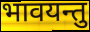
भावयन्तु